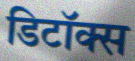
डिटॉक्स